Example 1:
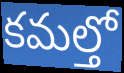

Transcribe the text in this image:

కమల్తో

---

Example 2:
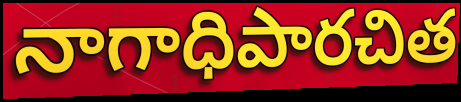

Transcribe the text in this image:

నాగాధిపారచిత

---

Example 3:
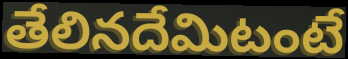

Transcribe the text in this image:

తేలినదేమిటంటే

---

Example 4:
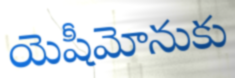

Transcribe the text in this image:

యెషీమోనుకు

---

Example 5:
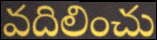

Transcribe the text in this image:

వదిలించు